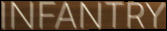
INFANTRY